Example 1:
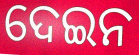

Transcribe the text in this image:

ଦେଇନ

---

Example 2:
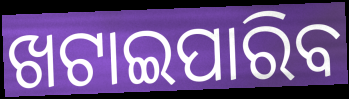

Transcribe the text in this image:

ଖଟାଇପାରିବ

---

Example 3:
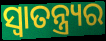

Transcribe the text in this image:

ସ୍ଵାତନ୍ତ୍ର୍ୟର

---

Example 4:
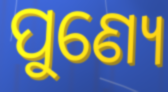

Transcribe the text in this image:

ପୁଣ୍ୟେ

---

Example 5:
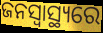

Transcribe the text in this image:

ଜନସ୍ଵାସ୍ଥ୍ୟରେ